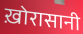
ख़ोरासानी